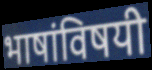
भाषांविषयी